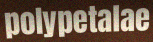
polypetalae